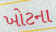
ખોટના